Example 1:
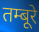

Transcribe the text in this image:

तम्बूरे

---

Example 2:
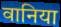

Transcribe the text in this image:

वानिया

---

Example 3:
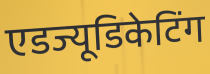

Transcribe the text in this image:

एडज्यूडिकेटिंग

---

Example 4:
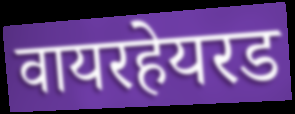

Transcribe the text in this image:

वायरहेयरड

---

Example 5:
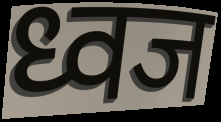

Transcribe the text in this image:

ध्वज